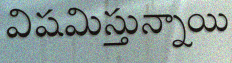
విషమిస్తున్నాయి